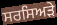
ਸਰਸਿਅੜੇ